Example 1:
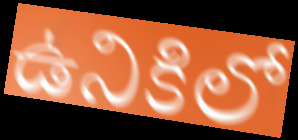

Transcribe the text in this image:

ఉనికిలో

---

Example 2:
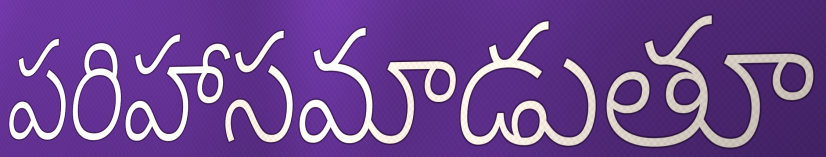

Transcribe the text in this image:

పరిహాసమాడుతూ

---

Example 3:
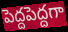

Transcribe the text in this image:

పెద్దపెద్దగా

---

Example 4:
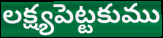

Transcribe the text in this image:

లక్ష్యపెట్టకుము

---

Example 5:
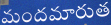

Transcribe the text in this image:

మందమారుత